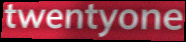
twentyone